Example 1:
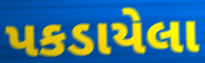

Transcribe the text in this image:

પકડાયેલા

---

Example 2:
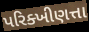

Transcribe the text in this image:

પરિક્ખીણત્તા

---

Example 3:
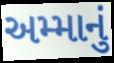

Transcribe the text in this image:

અમ્માનું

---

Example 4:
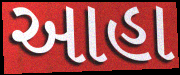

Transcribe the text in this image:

આહા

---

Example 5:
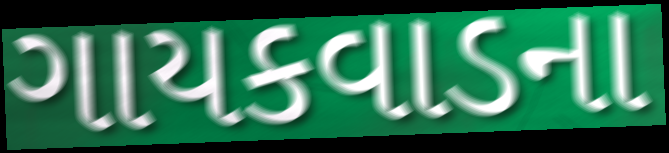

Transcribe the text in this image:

ગાયકવાડના